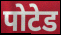
पोटेड